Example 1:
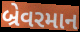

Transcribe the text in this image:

બ્રેવરમાન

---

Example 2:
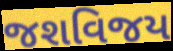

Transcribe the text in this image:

જશવિજય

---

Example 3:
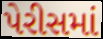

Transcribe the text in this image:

પેરીસમાં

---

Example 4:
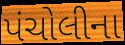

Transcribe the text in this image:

પંચોલીના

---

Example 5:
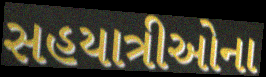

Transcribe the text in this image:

સહયાત્રીઓના